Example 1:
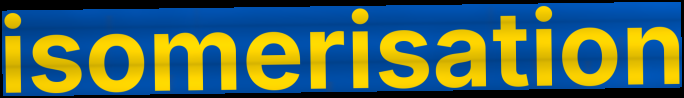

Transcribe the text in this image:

isomerisation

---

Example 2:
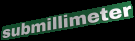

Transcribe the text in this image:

submillimeter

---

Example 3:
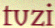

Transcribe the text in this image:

tuzi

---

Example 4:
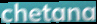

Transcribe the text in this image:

chetana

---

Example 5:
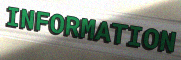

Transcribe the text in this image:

INFORMATION